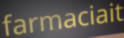
farmaciait